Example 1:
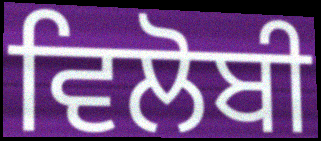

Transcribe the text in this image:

ਵਿਲੋਬੀ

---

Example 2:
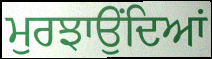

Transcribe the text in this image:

ਮੁਰਝਾਉਂਦਿਆਂ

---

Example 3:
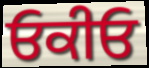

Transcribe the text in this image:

ਓਕੀਓ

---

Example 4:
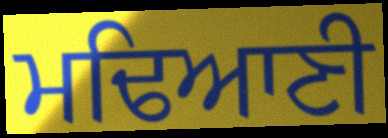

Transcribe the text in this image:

ਮਢਿਆਣੀ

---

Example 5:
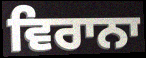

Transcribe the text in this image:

ਵਿਰਾਨਾ